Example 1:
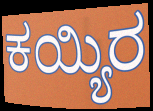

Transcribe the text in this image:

ಕಯ್ಯಿರ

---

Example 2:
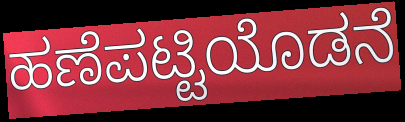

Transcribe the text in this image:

ಹಣೆಪಟ್ಟಿಯೊಡನೆ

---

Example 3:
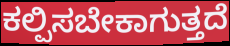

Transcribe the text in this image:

ಕಲ್ಪಿಸಬೇಕಾಗುತ್ತದೆ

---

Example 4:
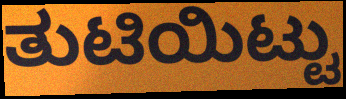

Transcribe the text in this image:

ತುಟಿಯಿಟ್ಟು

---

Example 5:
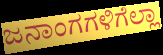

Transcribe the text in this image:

ಜನಾಂಗಗಳಿಗೆಲ್ಲಾ